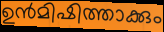
ഉൻമിഷിത്താക്കും